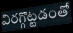
విరగ్గొట్టడంతో